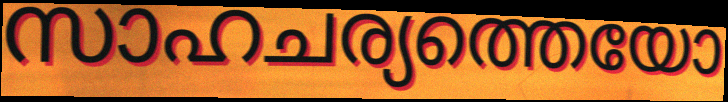
സാഹചര്യത്തെയോ